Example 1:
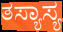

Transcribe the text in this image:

ತಸ್ಯಾಸ್ಯ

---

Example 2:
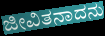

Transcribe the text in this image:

ಜೀವಿತನಾದನು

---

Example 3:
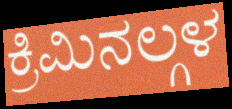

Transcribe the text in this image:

ಕ್ರಿಮಿನಲ್ಗಳ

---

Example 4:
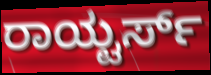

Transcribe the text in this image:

ರಾಯ್ಟರ್ಸ್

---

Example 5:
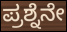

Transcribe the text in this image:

ಪ್ರಶ್ನೆನೇ